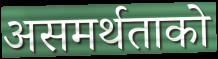
असमर्थताको